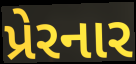
પ્રેરનાર